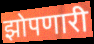
झोपणारी